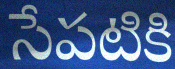
సేపటికి